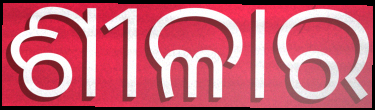
ଶୀଳାର